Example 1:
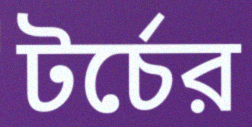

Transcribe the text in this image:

টর্চের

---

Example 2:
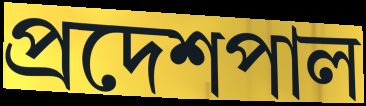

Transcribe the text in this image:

প্রদেশপাল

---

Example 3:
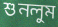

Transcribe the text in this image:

শুনলুম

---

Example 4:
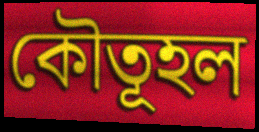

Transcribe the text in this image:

কৌতূহল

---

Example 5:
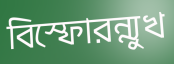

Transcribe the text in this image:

বিস্ফোরন্মুখ